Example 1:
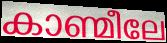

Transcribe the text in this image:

കാണ്മീലേ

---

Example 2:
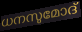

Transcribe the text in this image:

ധനസുമോദ്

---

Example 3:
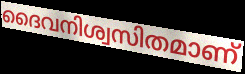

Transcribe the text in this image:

ദൈവനിശ്വസിതമാണ്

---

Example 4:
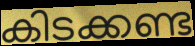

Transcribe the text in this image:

കിടക്കണ്ട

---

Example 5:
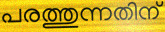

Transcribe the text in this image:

പരത്തുന്നതിന്